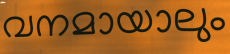
വനമായാലും